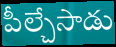
పీల్చేసాడు